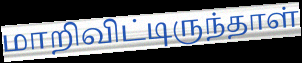
மாறிவிட்டிருந்தாள்